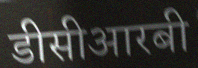
डीसीआरबी